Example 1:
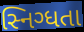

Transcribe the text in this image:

સ્નિગ્ધતા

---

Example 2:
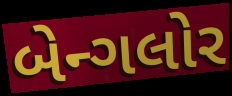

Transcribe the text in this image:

બેન્ગલોર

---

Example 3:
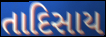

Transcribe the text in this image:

તાદિસાય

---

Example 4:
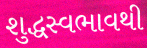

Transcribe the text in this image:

શુદ્ધસ્વભાવથી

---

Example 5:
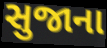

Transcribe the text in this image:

સુજાના